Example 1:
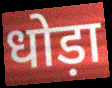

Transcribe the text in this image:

धोड़ा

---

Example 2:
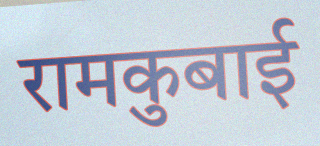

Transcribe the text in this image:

रामकुबाई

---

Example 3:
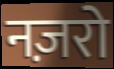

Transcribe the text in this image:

नज़रो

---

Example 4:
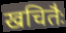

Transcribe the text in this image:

खचितैः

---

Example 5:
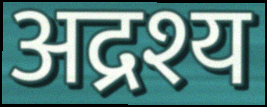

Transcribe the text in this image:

अद्रश्य